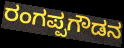
ರಂಗಪ್ಪಗೌಡನ